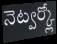
నెట్వర్క్లో